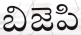
బిజెపి